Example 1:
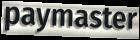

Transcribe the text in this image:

paymaster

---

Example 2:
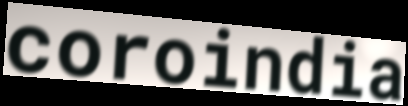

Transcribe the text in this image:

coroindia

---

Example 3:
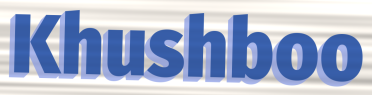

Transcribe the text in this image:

Khushboo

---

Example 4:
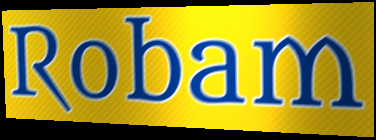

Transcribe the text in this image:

Robam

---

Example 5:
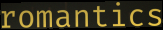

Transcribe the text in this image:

romantics